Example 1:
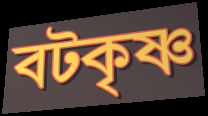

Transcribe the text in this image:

বটকৃষ্ণ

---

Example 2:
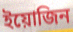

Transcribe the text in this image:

ইয়োজিন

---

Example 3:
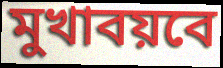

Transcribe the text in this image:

মুখাবয়বে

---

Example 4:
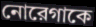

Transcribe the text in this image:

নোরেগাকে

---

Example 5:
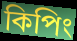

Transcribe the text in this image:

কিপিং